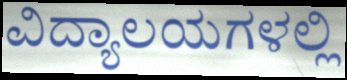
ವಿದ್ಯಾಲಯಗಳಲ್ಲಿ